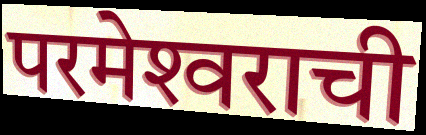
परमेश्‍वराची